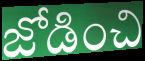
జోడించి